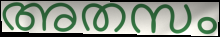
അതസം